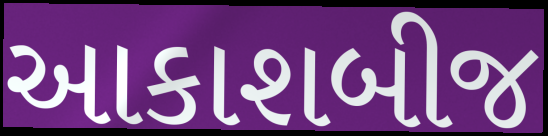
આકાશબીજ